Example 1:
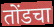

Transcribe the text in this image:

तोंडचा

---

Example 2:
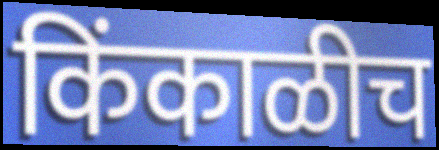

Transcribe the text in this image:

किंकाळीच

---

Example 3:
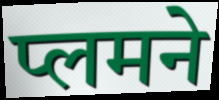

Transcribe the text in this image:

प्लमने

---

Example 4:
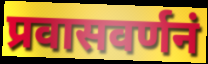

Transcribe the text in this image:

प्रवासवर्णनं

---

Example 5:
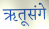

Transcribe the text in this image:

ऋतूसंगे